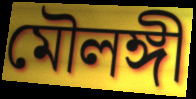
মৌলঙ্গী